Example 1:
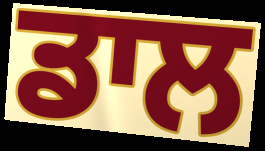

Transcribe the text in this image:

ਡਾਲ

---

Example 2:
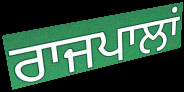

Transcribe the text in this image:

ਰਾਜਪਾਲਾਂ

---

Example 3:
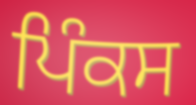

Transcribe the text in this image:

ਪਿੰਕਸ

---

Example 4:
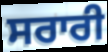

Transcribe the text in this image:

ਸਰਾਰੀ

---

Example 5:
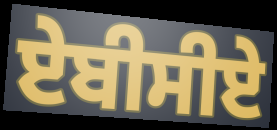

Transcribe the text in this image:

ਏਬੀਸੀਏ